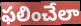
ఫలించేలా